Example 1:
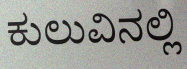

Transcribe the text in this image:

ಕುಲುವಿನಲ್ಲಿ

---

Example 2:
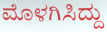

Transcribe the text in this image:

ಮೊಳಗಿಸಿದ್ದು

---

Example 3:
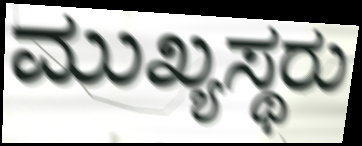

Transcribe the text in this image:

ಮುಖ್ಯಸ್ಥರು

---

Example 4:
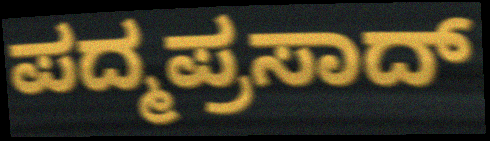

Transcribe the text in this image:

ಪದ್ಮಪ್ರಸಾದ್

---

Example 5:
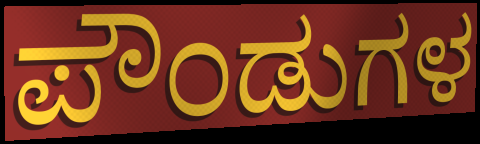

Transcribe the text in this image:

ಪೌಂಡುಗಳ